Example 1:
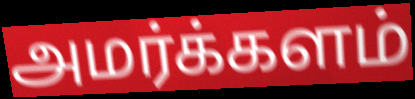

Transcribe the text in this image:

அமர்க்களம்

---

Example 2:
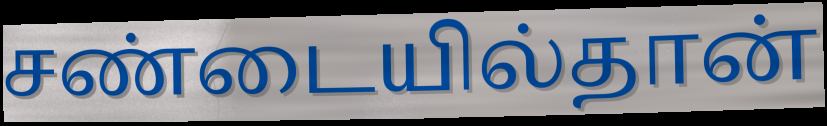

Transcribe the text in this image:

சண்டையில்தான்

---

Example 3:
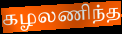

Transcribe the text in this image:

கழலணிந்த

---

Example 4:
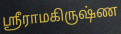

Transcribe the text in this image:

ஸ்ரீராமகிருஷ்ண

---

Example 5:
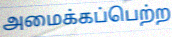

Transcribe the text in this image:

அமைக்கப்பெற்ற